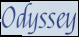
Odyssey